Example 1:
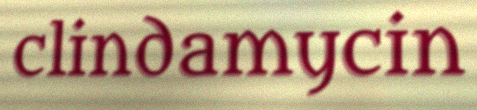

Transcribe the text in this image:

clindamycin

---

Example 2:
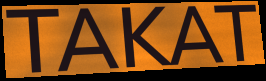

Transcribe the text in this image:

TAKAT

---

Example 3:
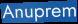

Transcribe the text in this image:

Anuprem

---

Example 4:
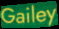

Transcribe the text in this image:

Gailey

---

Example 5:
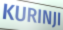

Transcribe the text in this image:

KURINJI